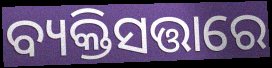
ବ୍ୟକ୍ତିସତ୍ତାରେ